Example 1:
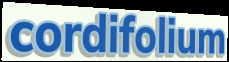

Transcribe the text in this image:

cordifolium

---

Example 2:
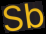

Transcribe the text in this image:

Sb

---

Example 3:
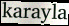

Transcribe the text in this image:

karayla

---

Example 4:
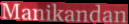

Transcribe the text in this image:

Manikandan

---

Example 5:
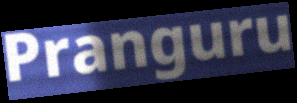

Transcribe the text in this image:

Pranguru